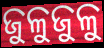
ଜୁଳୁଜୁଳୁ